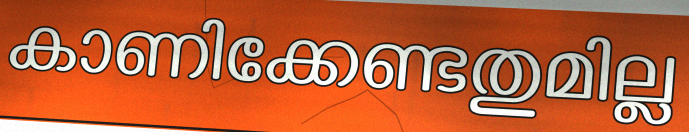
കാണിക്കേണ്ടതുമില്ല